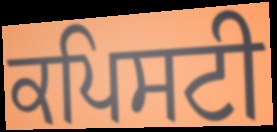
ਕਪਿਸਟੀ